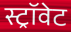
स्ट्रॉवेट